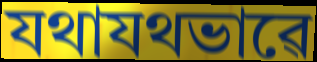
যথাযথভাৱে